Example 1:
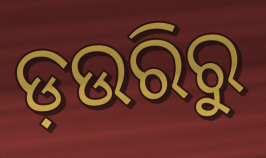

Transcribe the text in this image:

ଡ଼ଉରିରୁ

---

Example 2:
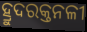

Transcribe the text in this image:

ହ୍ରୁଦରକ୍ତନଳୀ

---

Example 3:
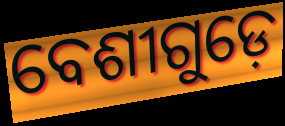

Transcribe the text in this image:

ବେଶୀଗୁଡ଼େ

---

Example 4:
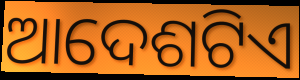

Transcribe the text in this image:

ଆଦେଶଟିଏ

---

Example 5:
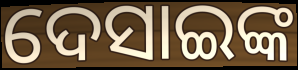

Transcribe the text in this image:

ଦେସାଇଙ୍କ